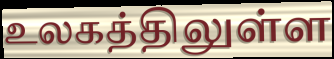
உலகத்திலுள்ள